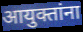
आयुक्तांना